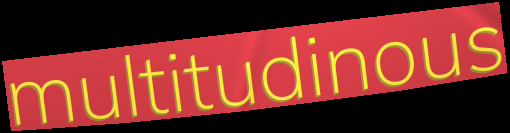
multitudinous